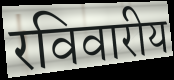
रविवारीय